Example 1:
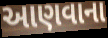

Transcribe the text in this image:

આણવાના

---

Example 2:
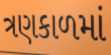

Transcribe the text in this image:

ત્રણકાળમાં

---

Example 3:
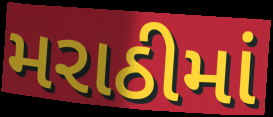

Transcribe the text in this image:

મરાઠીમાં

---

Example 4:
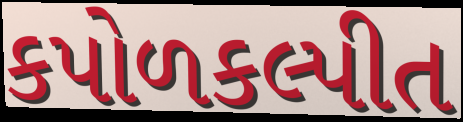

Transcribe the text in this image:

કપોળકલ્પીત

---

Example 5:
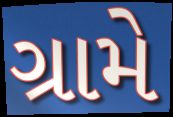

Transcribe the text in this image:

ગ્રામે